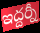
ఇద్దర్నీ